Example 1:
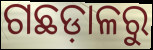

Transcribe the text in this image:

ଗଛଡ଼ାଳରୁ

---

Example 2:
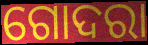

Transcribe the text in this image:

ଗୋଦରା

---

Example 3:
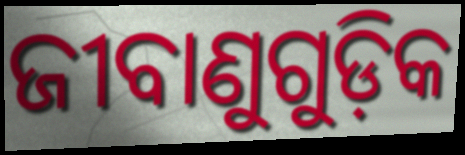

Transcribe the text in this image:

ଜୀବାଣୁଗୁଡ଼ିକ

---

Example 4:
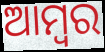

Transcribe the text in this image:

ଆମ୍ବର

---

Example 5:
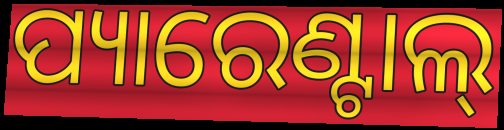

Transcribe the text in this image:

ପ୍ୟାରେଣ୍ଟାଲ୍